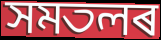
সমতলৰ